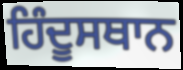
ਹਿੰਦੂਸਥਾਨ